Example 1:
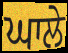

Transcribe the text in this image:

ਘਾਲੇ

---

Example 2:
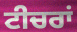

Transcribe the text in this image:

ਟੀਚਰਾਂ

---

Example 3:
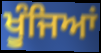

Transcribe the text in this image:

ਖੂੰਜਿਆਂ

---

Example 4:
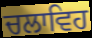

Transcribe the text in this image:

ਚਲਾਵਿਹ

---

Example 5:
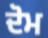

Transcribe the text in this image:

ਦੋਮ